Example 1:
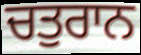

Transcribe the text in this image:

ਚਤੁਰਾਨ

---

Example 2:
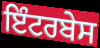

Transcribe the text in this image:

ਇੰਟਰਬੇਸ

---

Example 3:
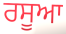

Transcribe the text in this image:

ਰਸੂਆ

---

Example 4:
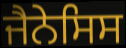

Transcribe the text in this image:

ਜੈਨੇਸਿਸ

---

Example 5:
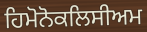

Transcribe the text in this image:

ਹਿਮੋਨੋਕਲਿਸੀਅਮ